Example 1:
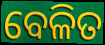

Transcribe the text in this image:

ବେଳିତ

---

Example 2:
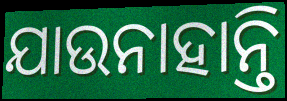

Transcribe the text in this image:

ଯାଉନାହାନ୍ତି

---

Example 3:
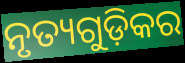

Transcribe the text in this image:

ନୃତ୍ୟଗୁଡ଼ିକର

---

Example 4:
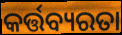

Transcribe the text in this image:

କର୍ତ୍ତବ୍ୟରତା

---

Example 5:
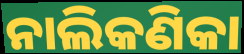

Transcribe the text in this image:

ନାଲିକଣିକା